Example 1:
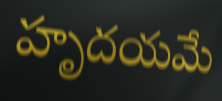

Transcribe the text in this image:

హృదయమే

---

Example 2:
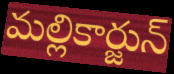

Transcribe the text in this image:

మల్లికార్జున్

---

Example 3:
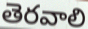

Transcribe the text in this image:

తెరవాలి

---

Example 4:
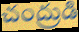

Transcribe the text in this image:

చంద్రుడి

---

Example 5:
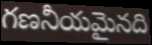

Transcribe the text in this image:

గణనీయమైనది